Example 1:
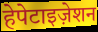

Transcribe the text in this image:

हेपेटाइज़ेशन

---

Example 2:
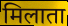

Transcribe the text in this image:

मिलाता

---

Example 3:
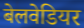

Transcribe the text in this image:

बेलवेडियर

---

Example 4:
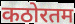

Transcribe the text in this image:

कठोरतम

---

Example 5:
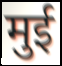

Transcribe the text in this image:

मुई